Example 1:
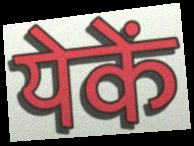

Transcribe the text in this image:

येकें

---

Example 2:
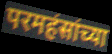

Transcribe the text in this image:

परमहंसांच्या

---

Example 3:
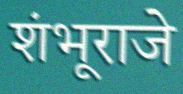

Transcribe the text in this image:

शंभूराजे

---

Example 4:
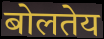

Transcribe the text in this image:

बोलतेय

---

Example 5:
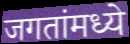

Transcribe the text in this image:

जगतांमध्ये